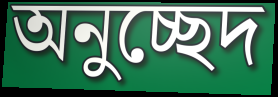
অনুচ্ছেদ